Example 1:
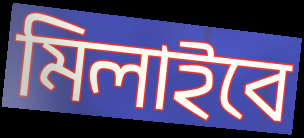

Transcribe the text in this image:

মিলাইবে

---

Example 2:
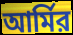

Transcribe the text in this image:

আর্মির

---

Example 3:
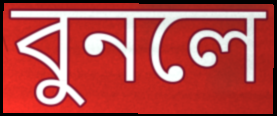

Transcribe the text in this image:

বুনলে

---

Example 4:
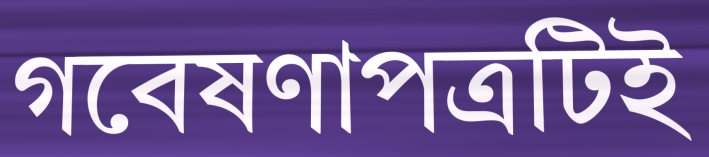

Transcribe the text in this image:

গবেষণাপত্রটিই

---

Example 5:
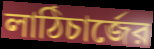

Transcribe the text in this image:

লাঠিচার্জের